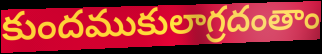
కుందముకులాగ్రదంతాం